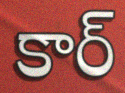
కార్